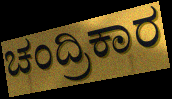
ಚಂದ್ರಿಕಾರ